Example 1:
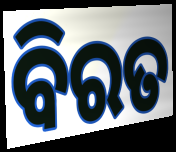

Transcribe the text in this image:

ବିରତ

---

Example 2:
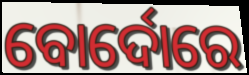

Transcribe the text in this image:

ବୋର୍ଦୋରେ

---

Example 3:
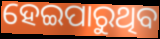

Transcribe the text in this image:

ହେଇପାରୁଥିବ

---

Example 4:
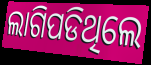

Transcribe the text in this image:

ଲାଗିପଡିଥିଲେ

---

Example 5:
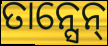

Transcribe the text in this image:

ତାନ୍ସେନ୍